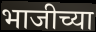
भाजीच्या